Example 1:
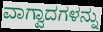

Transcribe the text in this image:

ವಾಗ್ವಾದಗಳನ್ನು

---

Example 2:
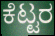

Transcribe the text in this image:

ಕೆಟ್ಟರ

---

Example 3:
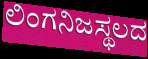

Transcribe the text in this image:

ಲಿಂಗನಿಜಸ್ಥಲದ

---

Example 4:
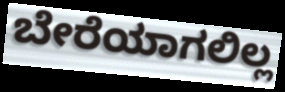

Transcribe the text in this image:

ಬೇರೆಯಾಗಲಿಲ್ಲ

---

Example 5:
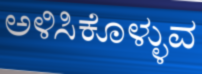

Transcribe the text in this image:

ಅಳಿಸಿಕೊಳ್ಳುವ